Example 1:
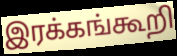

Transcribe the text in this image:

இரக்கங்கூறி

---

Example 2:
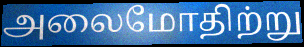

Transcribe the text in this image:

அலைமோதிற்று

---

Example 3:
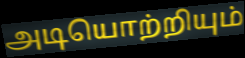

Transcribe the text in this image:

அடியொற்றியும்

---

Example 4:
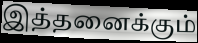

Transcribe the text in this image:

இத்தனைக்கும்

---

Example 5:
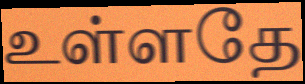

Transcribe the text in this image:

உள்ளதே